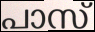
പാസ്